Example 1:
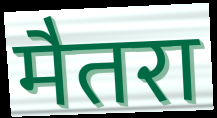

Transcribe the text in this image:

मैतरा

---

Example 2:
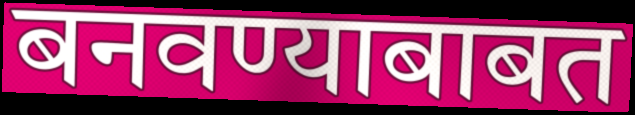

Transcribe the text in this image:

बनवण्याबाबत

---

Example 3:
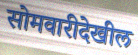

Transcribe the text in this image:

सोमवारीदेखील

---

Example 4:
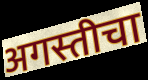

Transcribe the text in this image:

अगस्तीचा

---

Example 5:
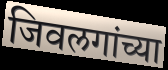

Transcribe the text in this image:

जिवलगांच्या